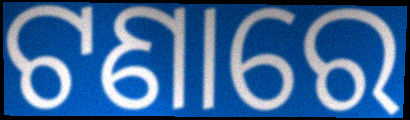
ଟଣାରେ